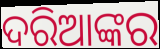
ଦରିଆଙ୍କର